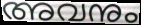
അവനും